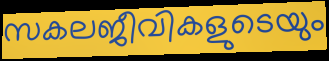
സകലജീവികളുടെയും